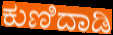
ಕುಣಿದಾಡಿ